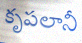
కృపలానీ